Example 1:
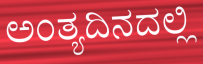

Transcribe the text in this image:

ಅಂತ್ಯದಿನದಲ್ಲಿ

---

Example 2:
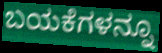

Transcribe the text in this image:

ಬಯಕೆಗಳನ್ನೂ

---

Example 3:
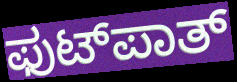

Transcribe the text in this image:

ಫುಟ್‍ಪಾತ್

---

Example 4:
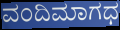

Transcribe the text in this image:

ವಂದಿಮಾಗಧ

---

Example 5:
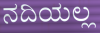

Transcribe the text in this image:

ನದಿಯಲ್ಲ